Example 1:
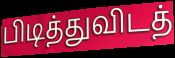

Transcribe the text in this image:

பிடித்துவிடத்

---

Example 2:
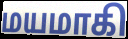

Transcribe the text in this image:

மயமாகி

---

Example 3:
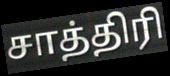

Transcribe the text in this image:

சாத்திரி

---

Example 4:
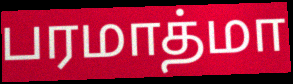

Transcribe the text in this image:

பரமாத்மா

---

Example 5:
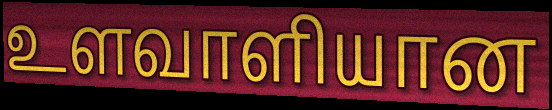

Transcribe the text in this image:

உளவாளியான